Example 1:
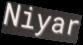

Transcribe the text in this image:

Niyar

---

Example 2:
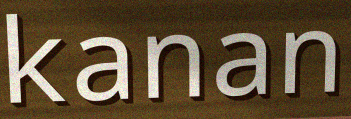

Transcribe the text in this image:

kanan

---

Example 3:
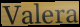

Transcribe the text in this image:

Valera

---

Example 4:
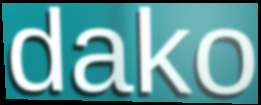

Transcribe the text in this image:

dako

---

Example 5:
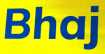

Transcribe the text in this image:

Bhaj